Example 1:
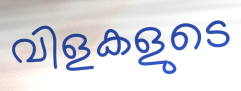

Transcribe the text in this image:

വിളകളുടെ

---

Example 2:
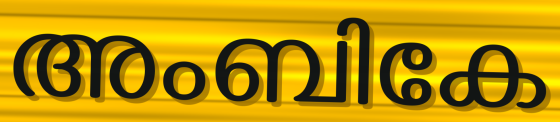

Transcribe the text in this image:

അംബികേ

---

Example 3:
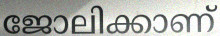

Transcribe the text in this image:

ജോലിക്കാണ്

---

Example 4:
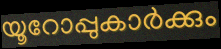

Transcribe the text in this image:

യൂറോപ്പുകാർക്കും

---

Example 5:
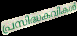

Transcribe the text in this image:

പ്രസിദ്ധകവികൾ